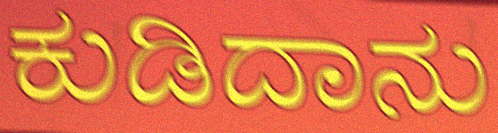
ಕುಡಿದಾನು